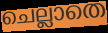
ചെല്ലാതെ